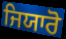
ਜਿਯਾਰੋ